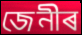
জেনীৰ